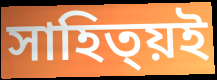
সাহিত্য়ই